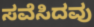
ಸವೆಸಿದವು